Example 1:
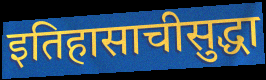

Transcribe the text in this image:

इतिहासाचीसुद्धा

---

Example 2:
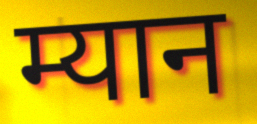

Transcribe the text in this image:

म्यान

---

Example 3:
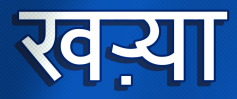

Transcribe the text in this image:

खऱ्‍या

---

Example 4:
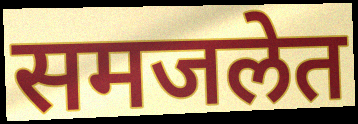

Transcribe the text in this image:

समजलेत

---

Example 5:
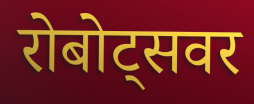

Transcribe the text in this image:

रोबोट्सवर